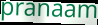
pranaam